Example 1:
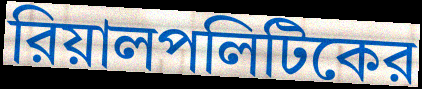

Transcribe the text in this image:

রিয়ালপলিটিকের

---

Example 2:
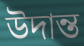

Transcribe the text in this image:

উদান্ত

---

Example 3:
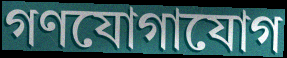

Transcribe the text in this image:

গণযোগাযোগ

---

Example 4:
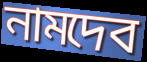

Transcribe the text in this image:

নামদেব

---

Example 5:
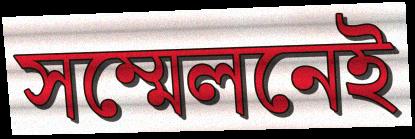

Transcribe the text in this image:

সম্মেলনেই